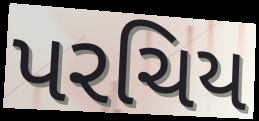
પરચિય